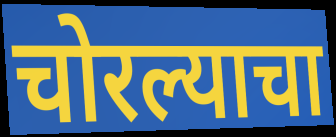
चोरल्याचा